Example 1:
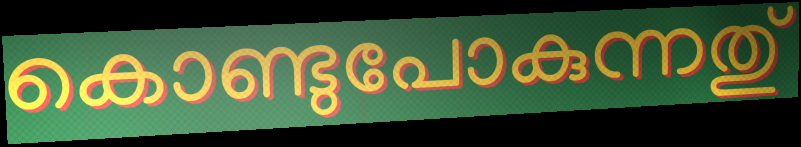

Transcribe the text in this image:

കൊണ്ടുപോകുന്നതു്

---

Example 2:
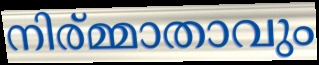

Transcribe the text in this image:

നിര്മ്മാതാവും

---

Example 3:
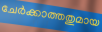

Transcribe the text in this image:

ചേർക്കാത്തതുമായ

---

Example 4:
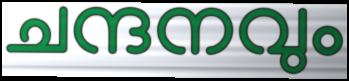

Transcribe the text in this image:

ചന്ദനവും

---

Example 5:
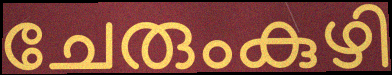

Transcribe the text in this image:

ചേരുംകുഴി